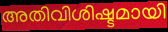
അതിവിശിഷ്ടമായി